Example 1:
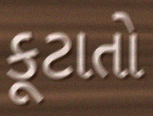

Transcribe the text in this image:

કૂટાતો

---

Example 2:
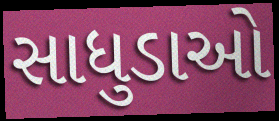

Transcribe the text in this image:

સાધુડાઓ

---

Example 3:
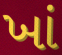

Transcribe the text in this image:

ખાં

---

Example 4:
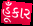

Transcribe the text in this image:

હૂઁકાર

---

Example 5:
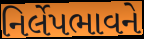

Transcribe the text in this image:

નિર્લેપભાવને